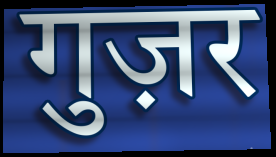
गुज़र